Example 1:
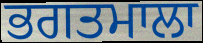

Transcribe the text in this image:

ਭਗਤਮਾਲਾ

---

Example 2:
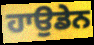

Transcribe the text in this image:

ਹਾਉਡੇਨ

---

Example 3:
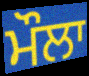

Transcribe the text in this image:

ਮੌਲਾ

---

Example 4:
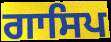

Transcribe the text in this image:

ਗਾਸਿਪ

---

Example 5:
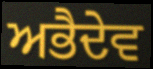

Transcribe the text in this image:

ਅਭੈਦੇਵ